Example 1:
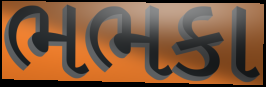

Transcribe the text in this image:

ભભકા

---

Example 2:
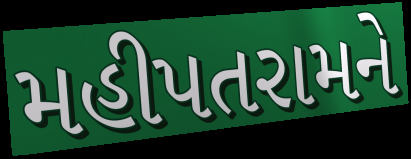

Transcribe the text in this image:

મહીપતરામને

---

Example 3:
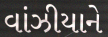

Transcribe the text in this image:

વાંઝીયાને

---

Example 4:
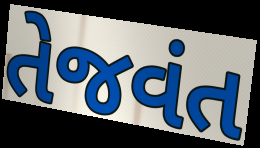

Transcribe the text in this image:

તેજવંત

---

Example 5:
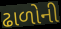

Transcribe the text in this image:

ઢાળોની